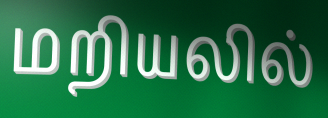
மறியலில்